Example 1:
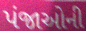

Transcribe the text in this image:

પંજાઓની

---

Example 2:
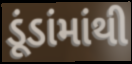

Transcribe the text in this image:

ડૂંડાંમાંથી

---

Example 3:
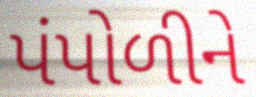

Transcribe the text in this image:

પંપોળીને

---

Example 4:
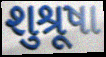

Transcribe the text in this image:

શુશ્રૂષા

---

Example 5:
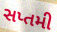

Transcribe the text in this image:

સપ્તમી